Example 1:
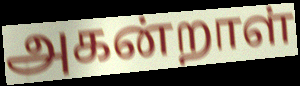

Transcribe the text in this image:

அகன்றாள்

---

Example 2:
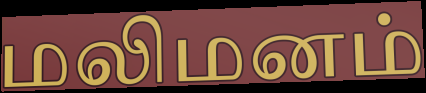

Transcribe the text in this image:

மலிமனம்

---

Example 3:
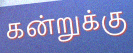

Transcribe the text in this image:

கன்றுக்கு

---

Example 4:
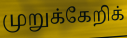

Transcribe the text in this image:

முறுக்கேறிக்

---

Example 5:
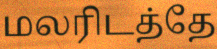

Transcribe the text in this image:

மலரிடத்தே